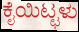
ಕೈಯಿಟ್ಟಳು